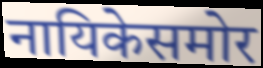
नायिकेसमोर